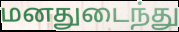
மனதுடைந்து